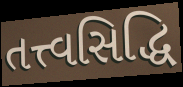
તત્ત્વસિદ્ધિ